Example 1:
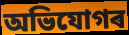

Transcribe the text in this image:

অভিযোগৰ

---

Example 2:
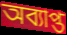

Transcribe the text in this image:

অব্যাপ্ত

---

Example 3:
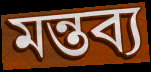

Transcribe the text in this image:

মন্তব্য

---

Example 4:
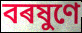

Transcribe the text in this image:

বৰষুণে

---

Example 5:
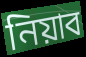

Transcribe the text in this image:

নিয়াব